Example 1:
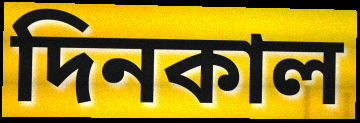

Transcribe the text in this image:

দিনকাল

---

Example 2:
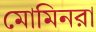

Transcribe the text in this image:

মোমিনরা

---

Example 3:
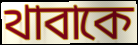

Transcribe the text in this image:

থাবাকে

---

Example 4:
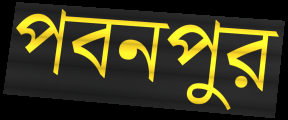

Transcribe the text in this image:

পবনপুর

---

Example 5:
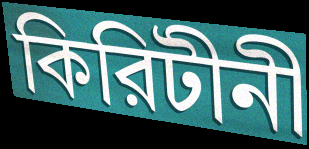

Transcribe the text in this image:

কিরিটীনী